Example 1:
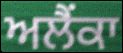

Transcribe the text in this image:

ਅਲੈਂਕਾ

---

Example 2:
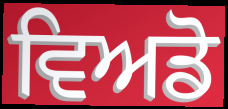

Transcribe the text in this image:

ਵਿਅਡੋ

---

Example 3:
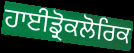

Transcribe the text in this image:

ਹਾਈਡ੍ਰੋਕਲੋਰਿਕ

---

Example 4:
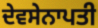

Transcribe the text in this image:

ਦੇਵਸੇਨਾਪਤੀ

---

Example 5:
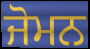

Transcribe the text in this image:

ਜੋਮਨ